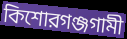
কিশোরগঞ্জগামী